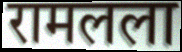
रामलला